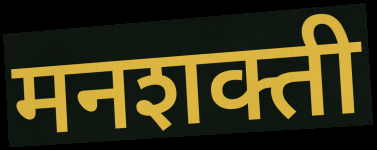
मनशक्ती